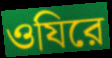
ওযিরে